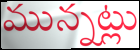
మున్నట్లు